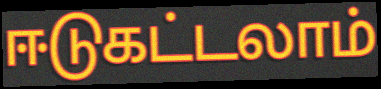
ஈடுகட்டலாம்